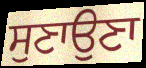
ਸੁਣਾਉਣਾ